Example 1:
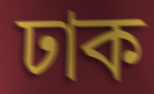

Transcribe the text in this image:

ঢাক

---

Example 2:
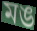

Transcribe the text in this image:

মঙ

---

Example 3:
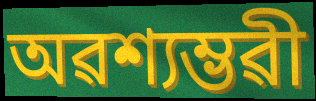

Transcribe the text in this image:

অৱশ্যম্ভৱী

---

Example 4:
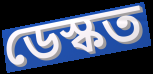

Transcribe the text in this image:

ডেস্কত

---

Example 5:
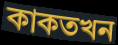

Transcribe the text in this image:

কাকতখন